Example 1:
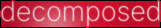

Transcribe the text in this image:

decomposed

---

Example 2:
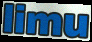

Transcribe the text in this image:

limu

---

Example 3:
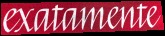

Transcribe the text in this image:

exatamente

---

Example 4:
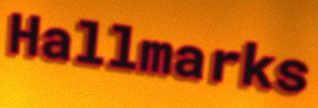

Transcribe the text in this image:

Hallmarks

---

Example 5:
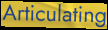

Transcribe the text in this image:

Articulating